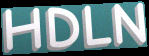
HDLN